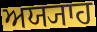
ਅਯ੍ਯਾਹ